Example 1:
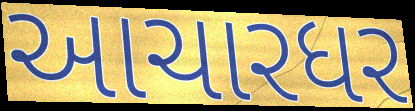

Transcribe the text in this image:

આચારધર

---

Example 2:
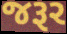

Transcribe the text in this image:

જરૂર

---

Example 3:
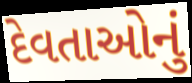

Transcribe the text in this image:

દેવતાઓનું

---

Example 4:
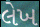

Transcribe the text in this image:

લેખ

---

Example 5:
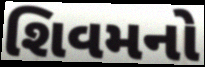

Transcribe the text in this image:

શિવમનો